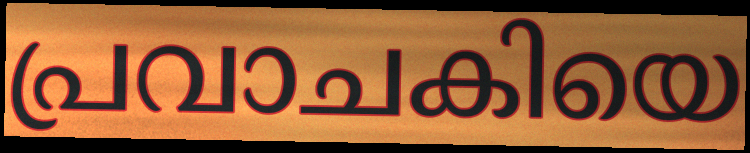
പ്രവാചകിയെ